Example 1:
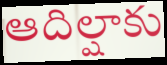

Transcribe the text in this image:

ఆదిల్షాకు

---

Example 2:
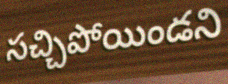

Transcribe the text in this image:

సచ్చిపోయిండని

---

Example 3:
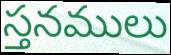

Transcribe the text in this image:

స్తనములు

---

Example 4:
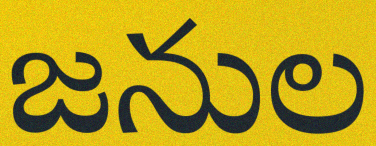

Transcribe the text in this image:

జనుల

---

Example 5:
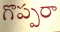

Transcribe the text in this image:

గొప్పరా